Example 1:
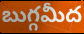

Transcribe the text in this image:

బుగ్గమీద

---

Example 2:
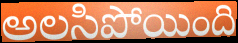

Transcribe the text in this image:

అలసిపోయింది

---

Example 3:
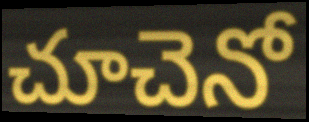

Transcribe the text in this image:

చూచెనో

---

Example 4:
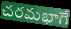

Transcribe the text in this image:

చరమభాగే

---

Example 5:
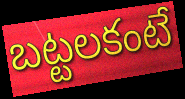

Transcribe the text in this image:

బట్టలకంటే